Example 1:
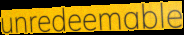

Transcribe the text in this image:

unredeemable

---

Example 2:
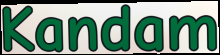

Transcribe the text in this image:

Kandam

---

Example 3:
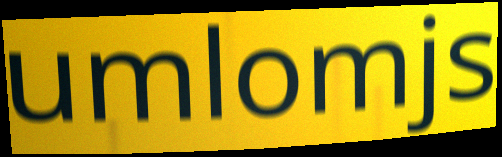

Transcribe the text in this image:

umlomjs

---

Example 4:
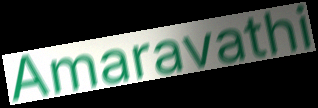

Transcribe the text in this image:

Amaravathi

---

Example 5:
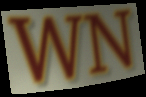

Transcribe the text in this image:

WN